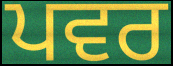
ਪਵਰ